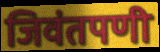
जिवंतपणी